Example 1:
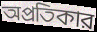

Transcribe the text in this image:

অপ্রতিকার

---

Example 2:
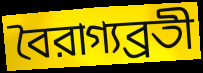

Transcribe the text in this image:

বৈরাগ্যব্রতী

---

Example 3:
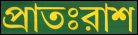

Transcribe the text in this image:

প্রাতঃরাশ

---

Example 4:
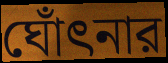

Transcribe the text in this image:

ঘোঁৎনার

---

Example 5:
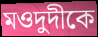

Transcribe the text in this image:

মওদুদীকে